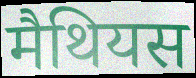
मैथियस